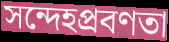
সন্দেহপ্রবণতা